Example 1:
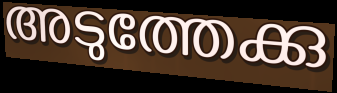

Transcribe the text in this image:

അടുത്തേക്കു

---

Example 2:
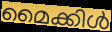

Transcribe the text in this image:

മൈക്കിൾ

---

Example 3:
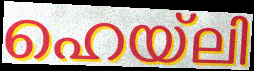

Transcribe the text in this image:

ഹെയ്‌ലി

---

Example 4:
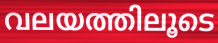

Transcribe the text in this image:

വലയത്തിലൂടെ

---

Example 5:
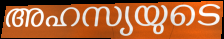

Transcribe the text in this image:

അഹസ്യയുടെ